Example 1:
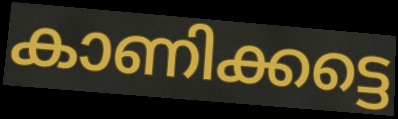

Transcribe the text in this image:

കാണിക്കട്ടെ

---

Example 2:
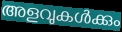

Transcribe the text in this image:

അളവുകൾക്കും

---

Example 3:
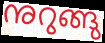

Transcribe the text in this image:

നുറുങ്ങു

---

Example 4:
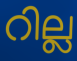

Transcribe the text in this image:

റില്ല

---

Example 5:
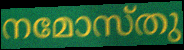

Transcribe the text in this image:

നമോസ്തു